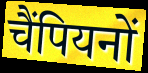
चैंपियनों